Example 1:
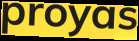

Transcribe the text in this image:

proyas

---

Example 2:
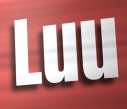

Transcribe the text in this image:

Luu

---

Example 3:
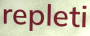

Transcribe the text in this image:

repleti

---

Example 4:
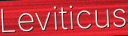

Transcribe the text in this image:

Leviticus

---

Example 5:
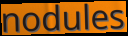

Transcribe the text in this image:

nodules